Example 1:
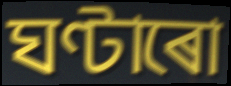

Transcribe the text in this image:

ঘণ্টাৰো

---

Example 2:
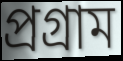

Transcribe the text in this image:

প্ৰগ্ৰাম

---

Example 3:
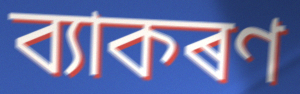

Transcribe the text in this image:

ব্যাকৰণ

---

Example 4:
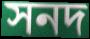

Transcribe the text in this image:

সনদ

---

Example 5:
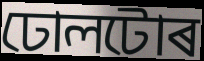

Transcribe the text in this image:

ঢোলটোৰ